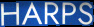
HARPS